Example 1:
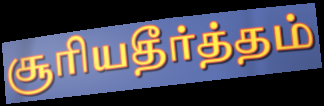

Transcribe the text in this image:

சூரியதீர்த்தம்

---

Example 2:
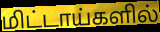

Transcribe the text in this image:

மிட்டாய்களில்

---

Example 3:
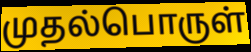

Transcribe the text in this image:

முதல்பொருள்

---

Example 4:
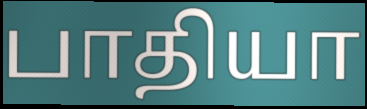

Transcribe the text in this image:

பாதியா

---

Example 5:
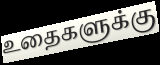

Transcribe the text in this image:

உதைகளுக்கு